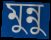
মুন্নু